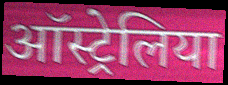
ऑस्ट्रेलिया